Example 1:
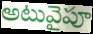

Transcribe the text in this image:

అటువైపూ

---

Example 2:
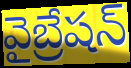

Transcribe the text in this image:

వైబ్రేషన్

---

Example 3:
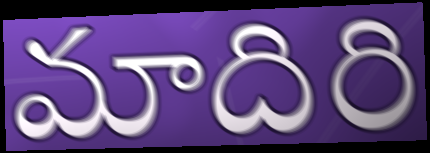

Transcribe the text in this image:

మాదిరి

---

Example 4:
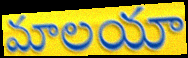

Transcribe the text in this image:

మాలయా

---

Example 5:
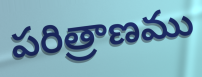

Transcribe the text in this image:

పరిత్రాణము